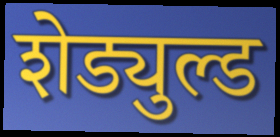
शेड्युल्ड